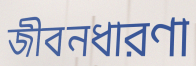
জীবনধারণা